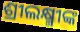
ଶ୍ରୀଲକ୍ଷ୍ମୀଙ୍କ